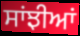
ਸਾਂਝੀਆਂ